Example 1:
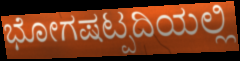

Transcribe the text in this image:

ಭೋಗಷಟ್ಪದಿಯಲ್ಲಿ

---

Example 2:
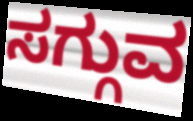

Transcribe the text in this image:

ಸಗ್ಗುವ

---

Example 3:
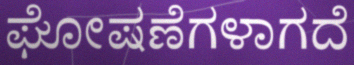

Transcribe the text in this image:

ಘೋಷಣೆಗಳಾಗದೆ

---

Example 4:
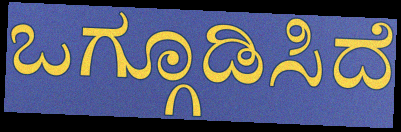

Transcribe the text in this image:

ಒಗ್ಗೂಡಿಸಿದೆ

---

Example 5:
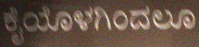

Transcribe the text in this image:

ಕೈಯೊಳಗಿಂದಲೂ